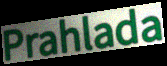
Prahlada